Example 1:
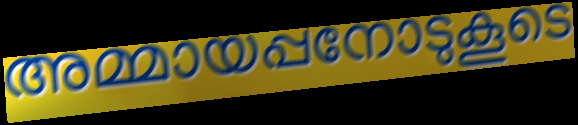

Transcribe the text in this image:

അമ്മായപ്പനോടുകൂടെ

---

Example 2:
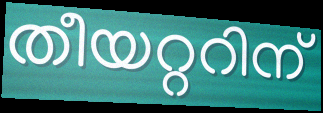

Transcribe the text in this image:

തീയറ്ററിന്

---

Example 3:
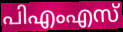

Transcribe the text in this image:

പിഎംഎസ്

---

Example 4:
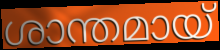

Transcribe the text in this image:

ശാന്തമായ്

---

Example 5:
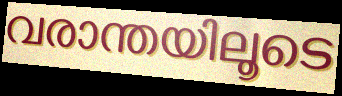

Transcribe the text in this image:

വരാന്തയിലൂടെ